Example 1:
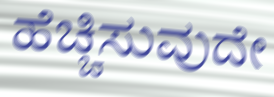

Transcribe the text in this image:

ಹೆಚ್ಚಿಸುವುದೇ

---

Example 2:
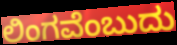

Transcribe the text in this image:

ಲಿಂಗವೆಂಬುದು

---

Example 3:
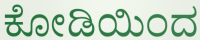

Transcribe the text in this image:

ಕೋಡಿಯಿಂದ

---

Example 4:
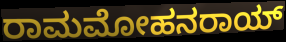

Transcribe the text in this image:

ರಾಮಮೋಹನರಾಯ್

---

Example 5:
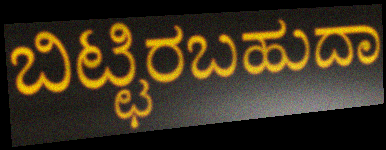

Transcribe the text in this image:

ಬಿಟ್ಟಿರಬಹುದಾ